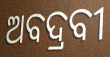
ଅବଦ୍ରବୀ